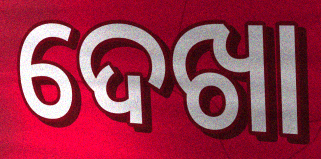
ଦେଖା